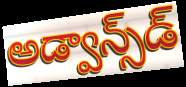
అడ్వాన్స్‌డ్